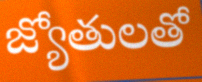
జ్యోతులతో